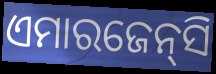
ଏମାରଜେନ୍‌ସି